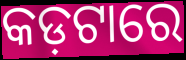
କଡ଼ଟାରେ